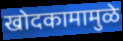
खोदकामामुळे